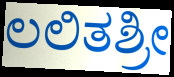
ಲಲಿತಶ್ರೀ